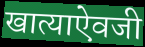
खात्याऐवजी